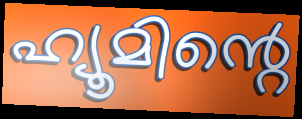
ഹ്യൂമിന്റെ